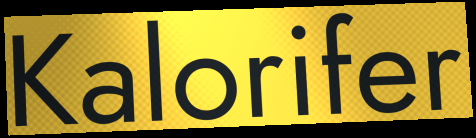
Kalorifer